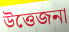
উত্তেজনা